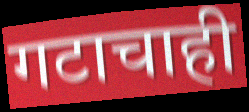
गटाचाही